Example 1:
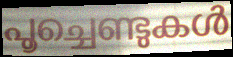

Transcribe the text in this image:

പൂച്ചെണ്ടുകൾ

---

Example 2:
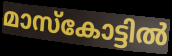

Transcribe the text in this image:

മാസ്കോട്ടിൽ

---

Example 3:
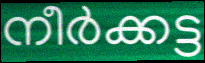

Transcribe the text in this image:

നീർക്കട്ട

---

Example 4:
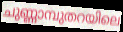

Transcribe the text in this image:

ചുണ്ണാമ്പുതറയിലെ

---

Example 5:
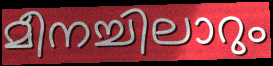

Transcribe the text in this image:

മീനച്ചിലാറും